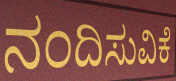
ನಂದಿಸುವಿಕೆ